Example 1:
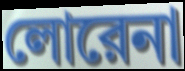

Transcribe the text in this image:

লোরেনা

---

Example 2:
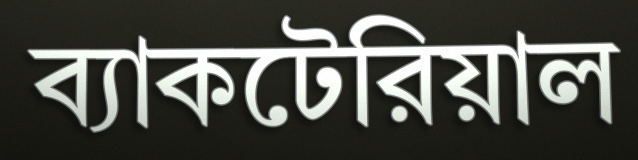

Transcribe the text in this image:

ব্যাকটেরিয়াল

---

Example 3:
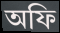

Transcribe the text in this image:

অফি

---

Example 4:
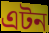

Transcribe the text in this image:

এটন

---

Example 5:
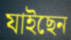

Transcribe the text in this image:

যাইছেন